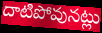
దాటిపోవునట్లు